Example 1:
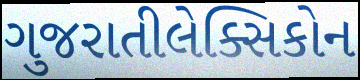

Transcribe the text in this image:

ગુજરાતીલેક્સિકોન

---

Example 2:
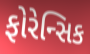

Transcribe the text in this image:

ફોરેન્સિક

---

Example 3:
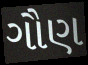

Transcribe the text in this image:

ગૌણ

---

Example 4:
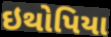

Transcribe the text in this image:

ઇથોપિયા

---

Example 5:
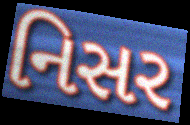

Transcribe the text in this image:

નિસર